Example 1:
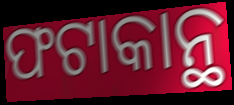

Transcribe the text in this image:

ଫଟାକାନ୍ଥ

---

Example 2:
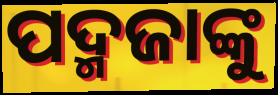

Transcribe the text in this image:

ପଦ୍ମଜାଙ୍କୁ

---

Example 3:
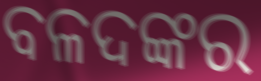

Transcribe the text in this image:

ବଳଦଙ୍କର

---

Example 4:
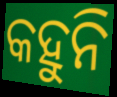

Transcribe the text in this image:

କହୁନି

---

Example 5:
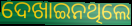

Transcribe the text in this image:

ଦେଖାଇନଥିଲେ